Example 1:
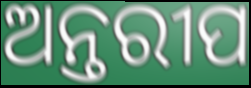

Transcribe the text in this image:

ଅନ୍ତରୀପ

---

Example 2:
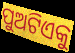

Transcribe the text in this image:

ପୁଅଟିଏକୁ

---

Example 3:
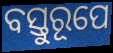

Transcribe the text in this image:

ବସ୍ତୁରୂପେ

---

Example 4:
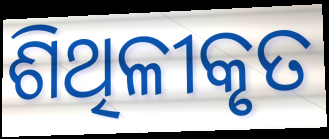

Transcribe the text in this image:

ଶିଥିଳୀକୃତ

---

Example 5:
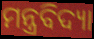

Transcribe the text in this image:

ମନ୍ତ୍ରବିଦ୍ୟା